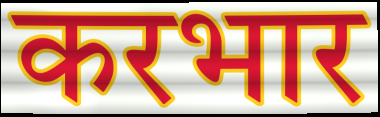
करभार